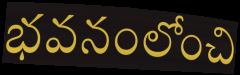
భవనంలోంచి